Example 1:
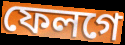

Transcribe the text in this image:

ফেলগে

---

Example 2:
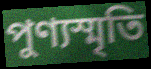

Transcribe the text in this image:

পুণ্যস্মৃতি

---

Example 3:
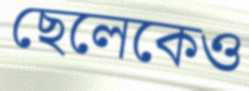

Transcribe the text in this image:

ছেলেকেও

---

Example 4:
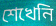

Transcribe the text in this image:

শেখেনি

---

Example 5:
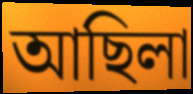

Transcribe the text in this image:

আছিলা